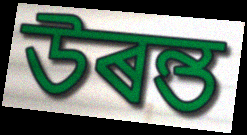
উৰন্ত